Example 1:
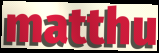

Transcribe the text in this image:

matthu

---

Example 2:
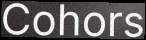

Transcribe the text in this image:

Cohors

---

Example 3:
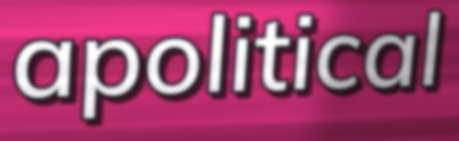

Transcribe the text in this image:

apolitical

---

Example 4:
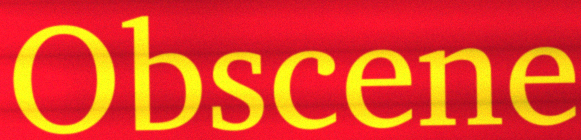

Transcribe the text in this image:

Obscene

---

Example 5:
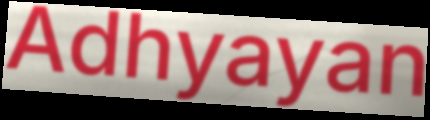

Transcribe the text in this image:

Adhyayan